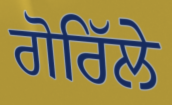
ਗੋਰਿੱਲੇ